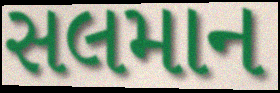
સલમાન